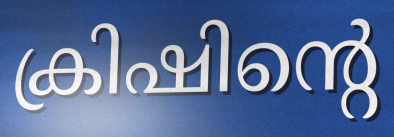
ക്രിഷിന്റെ